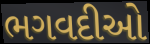
ભગવદીઓ